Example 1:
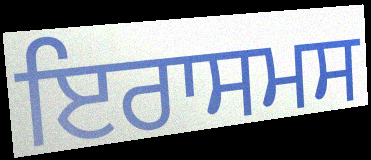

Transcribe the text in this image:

ਇਰਾਸਮਸ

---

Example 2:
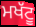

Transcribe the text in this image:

ਮਖੱਟੂ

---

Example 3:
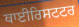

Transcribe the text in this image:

ਥਾਈਰਿਸਟਟਰ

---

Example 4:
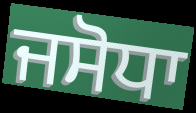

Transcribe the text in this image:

ਜਸੋਧਾ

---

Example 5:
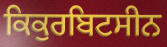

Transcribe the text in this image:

ਕਿਕੁਰਬਿਟਸੀਨ